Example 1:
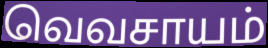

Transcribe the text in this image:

வெவசாயம்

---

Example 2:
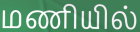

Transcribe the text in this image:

மணியில்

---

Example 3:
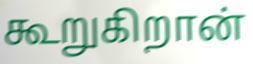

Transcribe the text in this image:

கூறுகிறான்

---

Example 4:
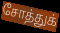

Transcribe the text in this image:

சோத்துக்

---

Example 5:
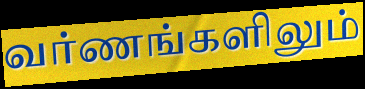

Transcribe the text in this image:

வர்ணங்களிலும்